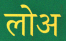
लोअ